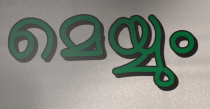
മെയ്യും